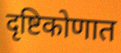
दृष्टिकोणात